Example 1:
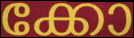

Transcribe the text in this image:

ക്കോ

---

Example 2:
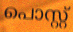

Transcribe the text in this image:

പൊസ്റ്റ്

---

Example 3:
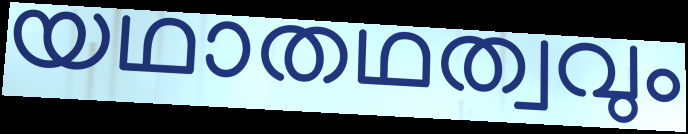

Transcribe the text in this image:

യഥാതഥത്വവും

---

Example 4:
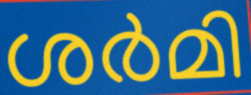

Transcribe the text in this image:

ശർമി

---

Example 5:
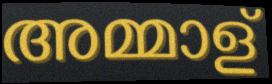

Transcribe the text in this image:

അമ്മാള്